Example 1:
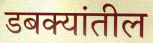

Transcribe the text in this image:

डबक्यांतील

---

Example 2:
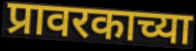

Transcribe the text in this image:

प्रावरकाच्या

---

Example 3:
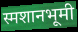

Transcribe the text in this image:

स्मशानभूमी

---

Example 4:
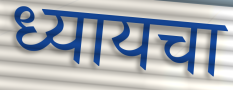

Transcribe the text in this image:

ध्यायचा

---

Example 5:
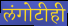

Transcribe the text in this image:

लंगोटीही